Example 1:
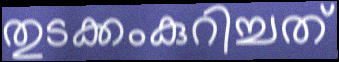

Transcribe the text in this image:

തുടക്കംകുറിച്ചത്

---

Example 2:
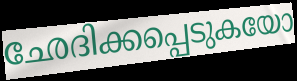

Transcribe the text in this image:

ഛേദിക്കപ്പെടുകയോ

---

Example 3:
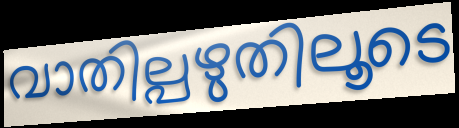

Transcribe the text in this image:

വാതില്പഴുതിലൂടെ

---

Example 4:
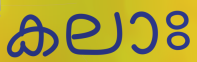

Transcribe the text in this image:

കലാഃ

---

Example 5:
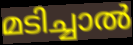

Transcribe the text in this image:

മടിച്ചാൽ